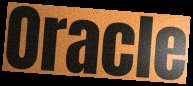
Oracle